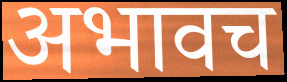
अभावच